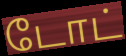
டோட்